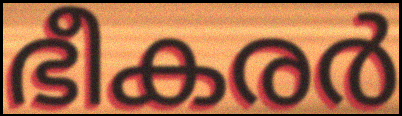
ഭീകരർ